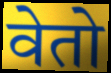
वेतो